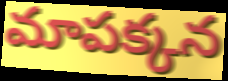
మాపక్కన